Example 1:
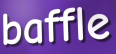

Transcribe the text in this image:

baffle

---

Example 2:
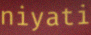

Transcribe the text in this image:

niyati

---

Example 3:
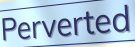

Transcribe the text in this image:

Perverted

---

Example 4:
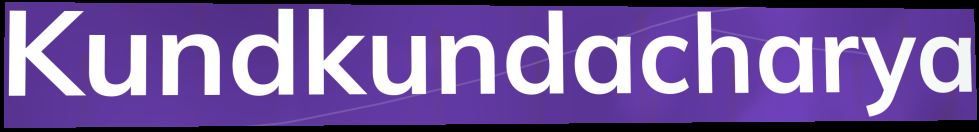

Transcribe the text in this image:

Kundkundacharya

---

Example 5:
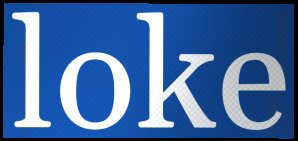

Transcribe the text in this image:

loke